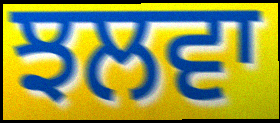
ਝਲਵਾ